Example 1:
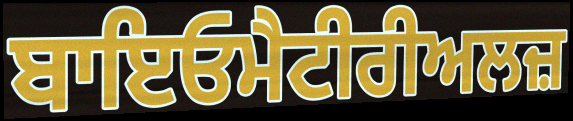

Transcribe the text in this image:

ਬਾਇਓਮੈਟੀਰੀਅਲਜ਼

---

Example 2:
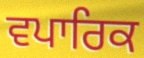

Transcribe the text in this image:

ਵਪਾਰਿਕ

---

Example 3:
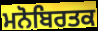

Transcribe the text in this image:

ਮਨੋਬਿਰਤਕ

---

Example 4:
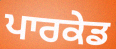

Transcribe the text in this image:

ਪਾਰਕੇਡ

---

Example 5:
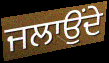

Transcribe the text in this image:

ਜਲਾਉਂਦੇ